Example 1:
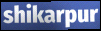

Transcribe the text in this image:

shikarpur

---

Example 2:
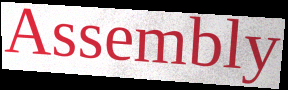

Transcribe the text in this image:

Assembly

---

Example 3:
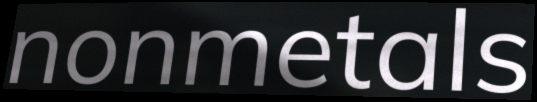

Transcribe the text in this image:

nonmetals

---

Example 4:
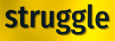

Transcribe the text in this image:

struggle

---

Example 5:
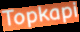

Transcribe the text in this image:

Topkapi